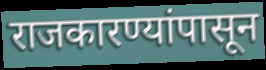
राजकारण्यांपासून